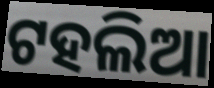
ଟହଲିଆ